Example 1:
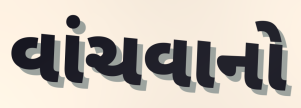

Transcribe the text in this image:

વાંચવાનો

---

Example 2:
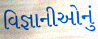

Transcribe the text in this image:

વિજ્ઞાનીઓનું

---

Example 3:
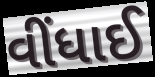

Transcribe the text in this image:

વીંધાઈ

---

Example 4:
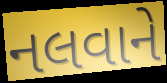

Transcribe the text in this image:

નલવાને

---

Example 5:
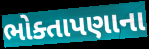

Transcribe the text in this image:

ભોક્તાપણાના